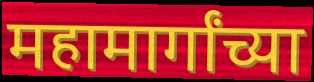
महामार्गांच्या